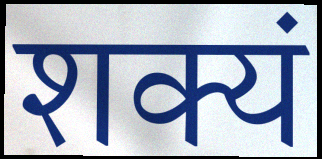
शक्यं